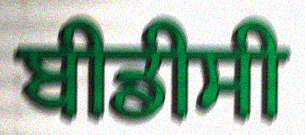
ਬੀਡੀਸੀ